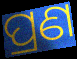
ପ୍ରଣ